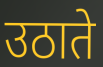
उठाते